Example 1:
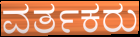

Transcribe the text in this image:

ವರ್ತಕರು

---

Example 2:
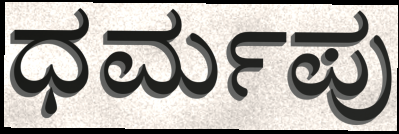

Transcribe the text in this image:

ಧರ್ಮಪು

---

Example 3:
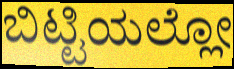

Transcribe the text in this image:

ಬಿಟ್ಟಿಯಲ್ಲೋ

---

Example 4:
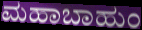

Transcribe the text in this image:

ಮಹಾಬಾಹುಂ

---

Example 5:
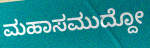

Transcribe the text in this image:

ಮಹಾಸಮುದ್ದೋ